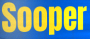
Sooper